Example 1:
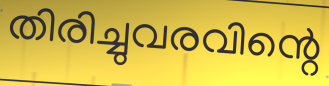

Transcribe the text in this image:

തിരിച്ചുവരവിന്റെ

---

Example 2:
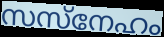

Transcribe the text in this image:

സസ്നേഹം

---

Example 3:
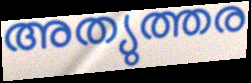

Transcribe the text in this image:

അത്യുത്തര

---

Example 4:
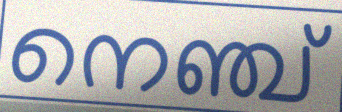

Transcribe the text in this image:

നെഞ്ച്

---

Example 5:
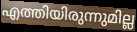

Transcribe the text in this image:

എത്തിയിരുന്നുമില്ല